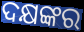
ଦକ୍ଷଙ୍କର